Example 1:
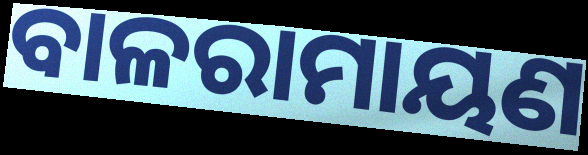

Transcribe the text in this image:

ବାଳରାମାୟଣ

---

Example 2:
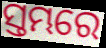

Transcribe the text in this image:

ସ୍ତମ୍ଭରେ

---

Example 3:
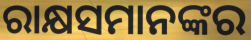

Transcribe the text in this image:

ରାକ୍ଷସମାନଙ୍କର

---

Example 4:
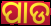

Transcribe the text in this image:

ପାଡ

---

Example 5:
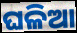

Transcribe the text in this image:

ଘଳିଆ